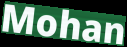
Mohan